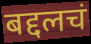
बद्दलचं